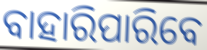
ବାହାରିପାରିବେ